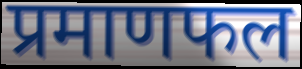
प्रमाणफल